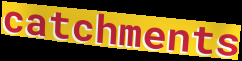
catchments